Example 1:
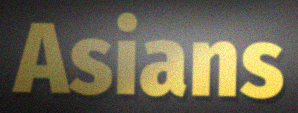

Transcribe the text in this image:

Asians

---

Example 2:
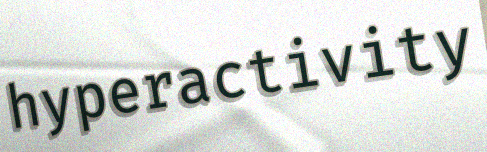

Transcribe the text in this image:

hyperactivity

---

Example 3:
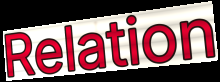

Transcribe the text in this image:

Relation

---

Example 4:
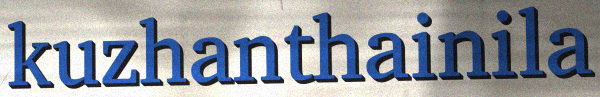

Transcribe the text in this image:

kuzhanthainila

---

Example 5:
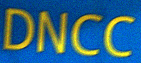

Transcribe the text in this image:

DNCC